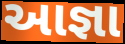
આજ્ઞા